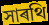
সাৰথি